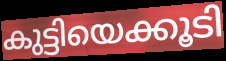
കുട്ടിയെക്കൂടി